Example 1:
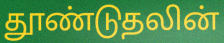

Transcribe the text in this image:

தூண்டுதலின்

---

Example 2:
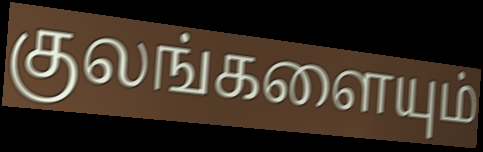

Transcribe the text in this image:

குலங்களையும்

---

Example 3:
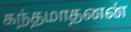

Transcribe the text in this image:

கந்தமாதனன்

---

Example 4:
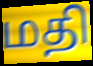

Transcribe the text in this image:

மதி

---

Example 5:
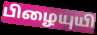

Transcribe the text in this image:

பிழையுயி